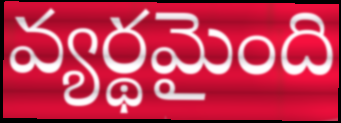
వ్యర్థమైంది